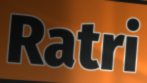
Ratri